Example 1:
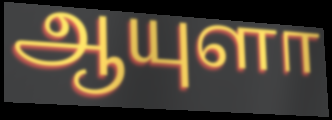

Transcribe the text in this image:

ஆயுளா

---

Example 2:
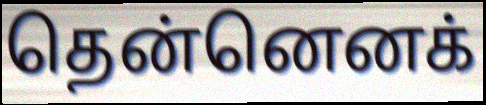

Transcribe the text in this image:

தென்னெனக்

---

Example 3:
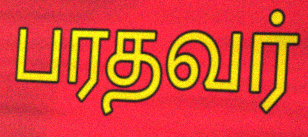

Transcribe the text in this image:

பரதவர்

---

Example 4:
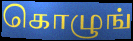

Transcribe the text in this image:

கொழுங்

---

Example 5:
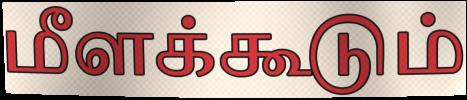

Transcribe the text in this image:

மீளக்கூடும்